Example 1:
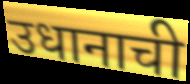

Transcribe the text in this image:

उधानाची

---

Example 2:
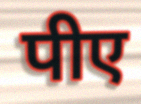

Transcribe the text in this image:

पीए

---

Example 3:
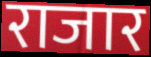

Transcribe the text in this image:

राजार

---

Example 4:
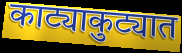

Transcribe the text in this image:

काट्याकुट्यात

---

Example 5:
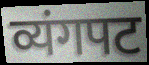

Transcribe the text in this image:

व्यंगपट